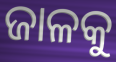
ଜାଳକୁ